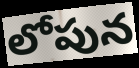
లోపున